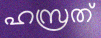
ഹസ്രത്